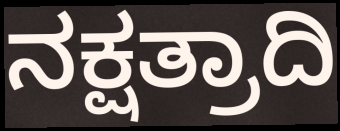
ನಕ್ಷತ್ರಾದಿ